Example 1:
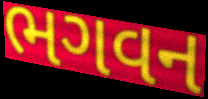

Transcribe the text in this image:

ભગવન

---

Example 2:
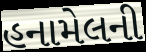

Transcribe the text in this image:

હનામેલની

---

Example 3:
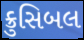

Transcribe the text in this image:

ક્રુસિબલ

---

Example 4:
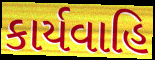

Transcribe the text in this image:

કાર્યવાહિ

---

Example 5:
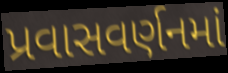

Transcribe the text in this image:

પ્રવાસવર્ણનમાં